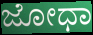
ಜೋಧಾ